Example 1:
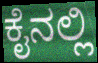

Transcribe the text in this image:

ಕೈನಲ್ಲಿ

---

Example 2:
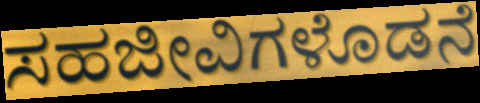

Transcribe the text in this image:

ಸಹಜೀವಿಗಳೊಡನೆ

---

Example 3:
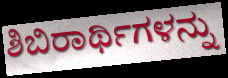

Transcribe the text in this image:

ಶಿಬಿರಾರ್ಥಿಗಳನ್ನು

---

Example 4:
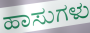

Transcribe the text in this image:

ಹಾಸುಗಳು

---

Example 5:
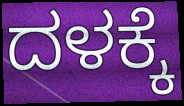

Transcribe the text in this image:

ದಳಕ್ಕೆ